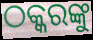
ଠକ୍କରଙ୍କୁ